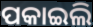
ପକାଇଲି